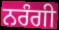
ਨਰੰਗੀ